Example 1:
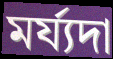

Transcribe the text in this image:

মৰ্য্যদা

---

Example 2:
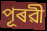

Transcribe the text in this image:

পূৰৱী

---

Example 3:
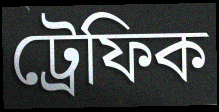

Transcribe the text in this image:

ট্ৰেফিক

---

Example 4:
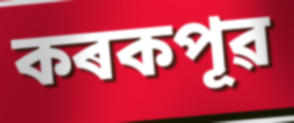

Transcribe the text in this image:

কৰকপূৱ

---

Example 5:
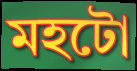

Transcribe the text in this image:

মহটো